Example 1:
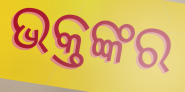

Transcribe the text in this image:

ଭକ୍ତଙ୍କର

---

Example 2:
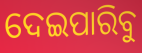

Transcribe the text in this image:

ଦେଇପାରିବୁ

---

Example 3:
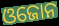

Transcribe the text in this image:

ଓଜୋନ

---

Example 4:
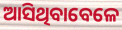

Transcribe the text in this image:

ଆସିଥିବାବେଳେ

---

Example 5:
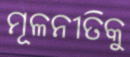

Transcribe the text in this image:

ମୂଳନୀତିକୁ